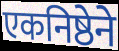
एकनिष्ठेने